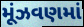
મૂંઝવણમાં